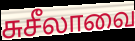
சுசீலாவை